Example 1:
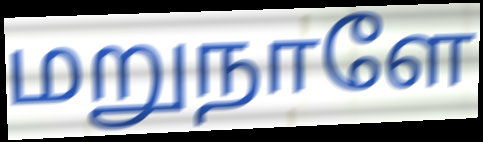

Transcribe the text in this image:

மறுநாளே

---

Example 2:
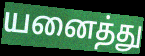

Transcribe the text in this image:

யனைத்து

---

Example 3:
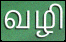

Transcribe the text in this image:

வழி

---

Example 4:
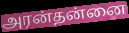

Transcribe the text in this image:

அரன்தன்னை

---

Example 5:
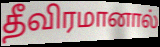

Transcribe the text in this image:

தீவிரமானால்